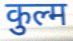
कुल्म